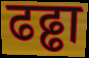
ढढ्ढा